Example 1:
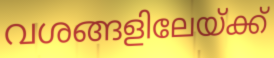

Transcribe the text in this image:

വശങ്ങളിലേയ്ക്ക്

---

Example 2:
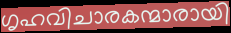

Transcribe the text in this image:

ഗൃഹവിചാരകന്മാരായി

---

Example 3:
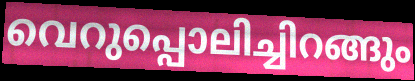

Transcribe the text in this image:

വെറുപ്പൊലിച്ചിറങ്ങും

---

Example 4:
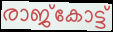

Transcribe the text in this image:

രാജ്കോട്ട്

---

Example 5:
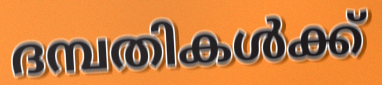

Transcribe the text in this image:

ദമ്പതികൾക്ക്